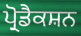
ਪ੍ਰੋਡੈਕਸ਼ਨ